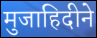
मुजाहिदीने